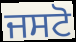
ਜਸਟੋ